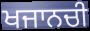
ਖਜਾਨਚੀ